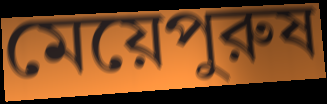
মেয়েপুরুষ